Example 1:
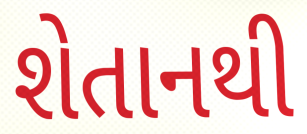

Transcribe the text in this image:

શેતાનથી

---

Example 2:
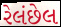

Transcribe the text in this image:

રેલંછેલ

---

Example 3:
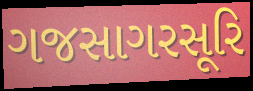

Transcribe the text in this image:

ગજસાગરસૂરિ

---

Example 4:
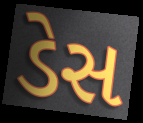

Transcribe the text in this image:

ડેસ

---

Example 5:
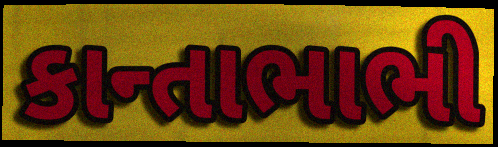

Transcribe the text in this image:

કાન્તાભાભી